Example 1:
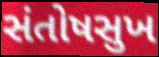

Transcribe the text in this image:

સંતોષસુખ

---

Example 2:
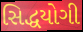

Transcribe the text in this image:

સિદ્ધયોગી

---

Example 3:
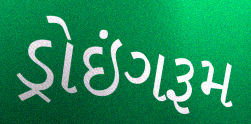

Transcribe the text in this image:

ડ્રોઇંગરૂમ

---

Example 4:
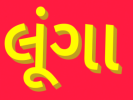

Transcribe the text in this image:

લૂંગા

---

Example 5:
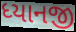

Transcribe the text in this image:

ધ્યાનજી